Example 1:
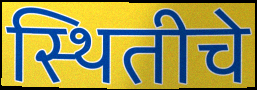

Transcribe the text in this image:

स्थितीचे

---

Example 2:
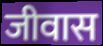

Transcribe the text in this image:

जीवास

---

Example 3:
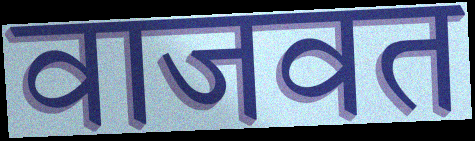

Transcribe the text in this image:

वाजवत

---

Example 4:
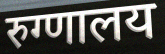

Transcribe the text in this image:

रुग्णालय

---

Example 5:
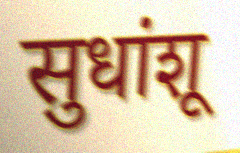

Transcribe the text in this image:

सुधांशू